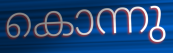
കൊന്നു